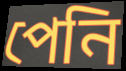
পেনি